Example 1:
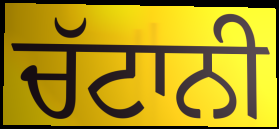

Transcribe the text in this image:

ਚੱਟਾਨੀ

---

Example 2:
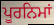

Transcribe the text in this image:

ਪੂਰਨਿਮਾਂ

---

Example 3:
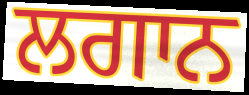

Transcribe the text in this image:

ਲਗਾਨ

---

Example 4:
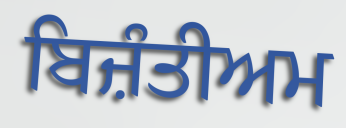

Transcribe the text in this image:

ਬਿਜ਼ੰਤੀਅਮ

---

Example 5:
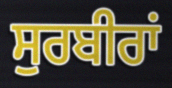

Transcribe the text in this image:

ਸੁਰਬੀਰਾਂ